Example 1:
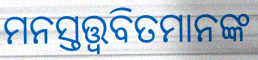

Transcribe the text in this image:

ମନସ୍ତତ୍ତ୍ୱବିତମାନଙ୍କ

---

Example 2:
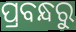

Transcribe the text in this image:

ପ୍ରବନ୍ଧରୁ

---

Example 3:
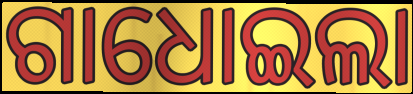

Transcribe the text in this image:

ଗାଧୋଇଲା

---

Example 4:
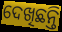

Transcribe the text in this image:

ଦେଖିଛନ୍ତି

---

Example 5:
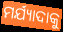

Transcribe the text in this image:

ମର୍ଯ୍ୟାଦାକୁ